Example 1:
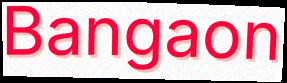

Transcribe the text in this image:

Bangaon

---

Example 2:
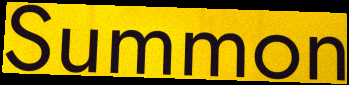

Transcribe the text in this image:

Summon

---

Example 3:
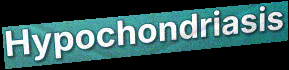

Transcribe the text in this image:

Hypochondriasis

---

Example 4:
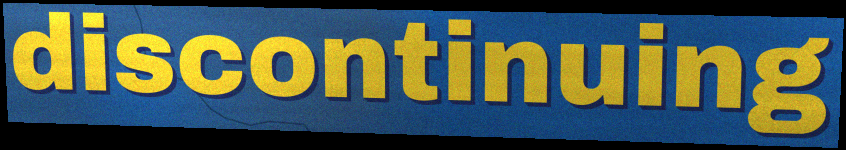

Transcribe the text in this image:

discontinuing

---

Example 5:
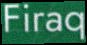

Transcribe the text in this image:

Firaq